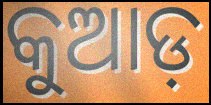
କୁଆଡ଼